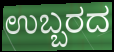
ಉಬ್ಬರದ